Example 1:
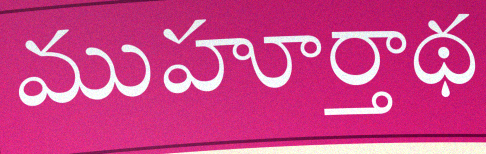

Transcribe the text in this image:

ముహూర్తాథ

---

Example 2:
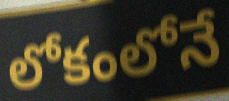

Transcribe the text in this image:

లోకంలోనే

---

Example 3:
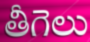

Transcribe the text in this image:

తీగెలు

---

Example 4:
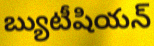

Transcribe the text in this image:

బ్యుటీషియన్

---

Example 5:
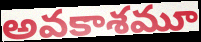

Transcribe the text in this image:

అవకాశమూ